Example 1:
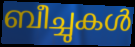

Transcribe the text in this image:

ബീച്ചുകൾ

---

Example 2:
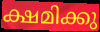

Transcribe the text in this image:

ക്ഷമിക്കു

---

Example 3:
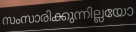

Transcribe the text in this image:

സംസാരിക്കുന്നില്ലയോ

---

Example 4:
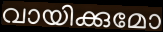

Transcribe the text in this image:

വായിക്കുമോ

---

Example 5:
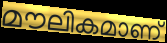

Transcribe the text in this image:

മൗലികമാണ്